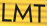
LMT